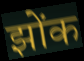
झोंक